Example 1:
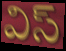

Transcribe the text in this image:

విస్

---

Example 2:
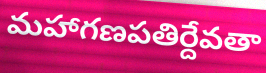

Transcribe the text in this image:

మహాగణపతిర్దేవతా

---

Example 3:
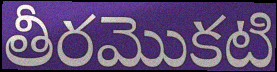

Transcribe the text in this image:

తీరమొకటి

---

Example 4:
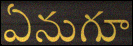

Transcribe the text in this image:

ఏనుగూ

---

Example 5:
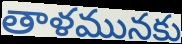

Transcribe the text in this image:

తాళమునకు